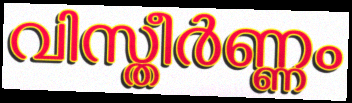
വിസ്തീർണ്ണം